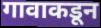
गावाकडून